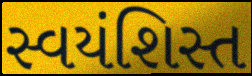
સ્વયંશિસ્ત